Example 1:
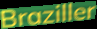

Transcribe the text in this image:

Braziller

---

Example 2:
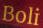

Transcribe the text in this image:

Boli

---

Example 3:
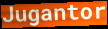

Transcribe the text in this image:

Jugantor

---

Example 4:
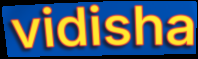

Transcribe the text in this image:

vidisha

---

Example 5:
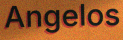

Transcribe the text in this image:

Angelos